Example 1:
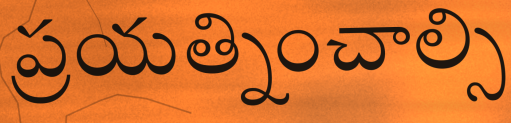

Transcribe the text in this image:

ప్రయత్నించాల్సి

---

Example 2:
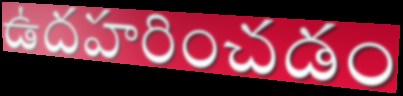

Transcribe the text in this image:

ఉదహరించడం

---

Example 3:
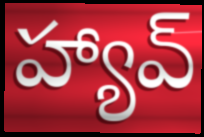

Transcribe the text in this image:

హ్యావ్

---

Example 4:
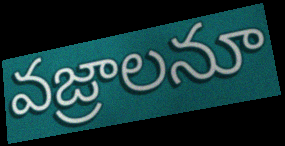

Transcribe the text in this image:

వజ్రాలనూ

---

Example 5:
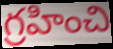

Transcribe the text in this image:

గ్రహించి